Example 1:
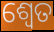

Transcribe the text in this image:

ଶ୍ଵେତ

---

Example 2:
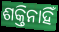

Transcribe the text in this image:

ଶକ୍ତିନାହିଁ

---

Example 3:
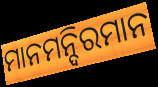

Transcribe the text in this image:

ମାନମନ୍ଦିରମାନ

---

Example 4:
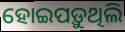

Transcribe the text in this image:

ହୋଇପଡ଼ୁଥିଲି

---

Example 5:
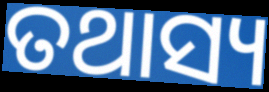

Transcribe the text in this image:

ତଥାସ୍ୟ